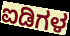
ಐಡಿಗಳ